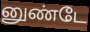
னுண்டே